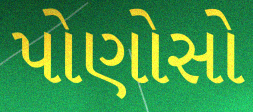
પોણોસો